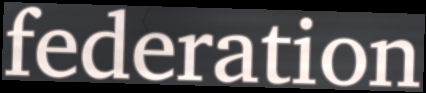
federation